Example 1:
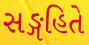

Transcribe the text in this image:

સઙ્ગહિતે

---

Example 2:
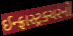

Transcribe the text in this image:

ઈન્ફ્રાસ્ટ્રક્ચરનો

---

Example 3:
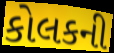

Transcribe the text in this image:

કોલકની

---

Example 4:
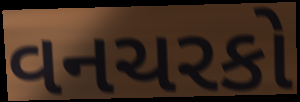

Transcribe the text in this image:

વનચરકો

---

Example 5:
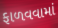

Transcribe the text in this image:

ફાળવવામાં